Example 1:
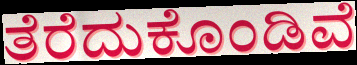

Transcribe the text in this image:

ತೆರೆದುಕೊಂಡಿವೆ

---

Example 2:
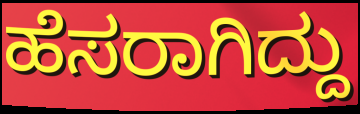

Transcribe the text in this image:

ಹೆಸರಾಗಿದ್ದು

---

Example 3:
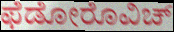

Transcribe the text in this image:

ಫೆಡೋರೊವಿಚ್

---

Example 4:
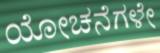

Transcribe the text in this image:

ಯೋಚನೆಗಳೇ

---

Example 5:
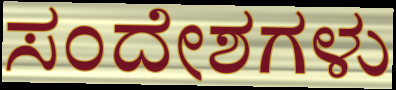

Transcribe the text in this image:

ಸಂದೇಶಗಳು